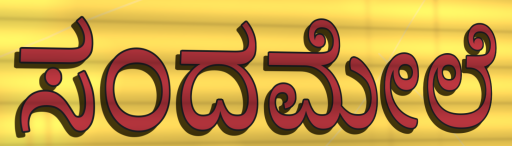
ಸಂದಮೇಲೆ